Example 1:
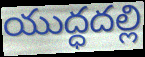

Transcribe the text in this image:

యుద్ధదల్లి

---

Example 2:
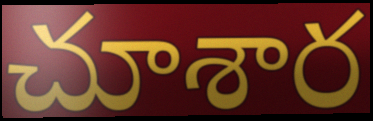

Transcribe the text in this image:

చూశార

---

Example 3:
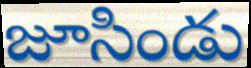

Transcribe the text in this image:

జూసిండు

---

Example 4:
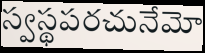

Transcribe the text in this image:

స్వస్థపరచునేమో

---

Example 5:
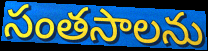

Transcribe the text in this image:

సంతసాలను